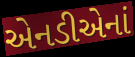
એનડીએનાં